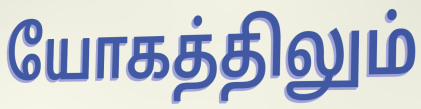
யோகத்திலும்